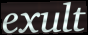
exult